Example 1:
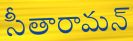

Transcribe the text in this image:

సీతారామన్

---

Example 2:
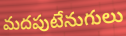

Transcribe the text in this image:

మదపుటేనుగులు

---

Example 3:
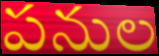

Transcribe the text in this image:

పనుల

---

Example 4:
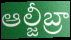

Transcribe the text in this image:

ఆల్జీబ్రా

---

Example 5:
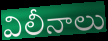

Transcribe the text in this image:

విలీనాలు